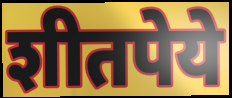
शीतपेये